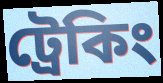
ট্রেকিং